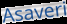
Asaveri